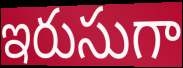
ఇరుసుగా